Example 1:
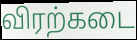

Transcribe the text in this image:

விரற்கடை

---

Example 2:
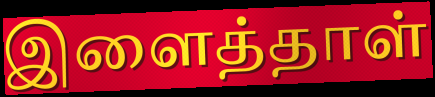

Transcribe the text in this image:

இளைத்தாள்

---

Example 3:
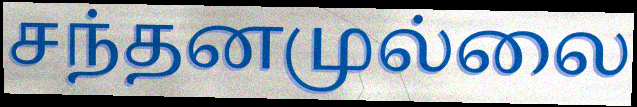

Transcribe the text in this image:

சந்தனமுல்லை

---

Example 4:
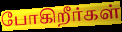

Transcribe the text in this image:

போகிறீர்கள்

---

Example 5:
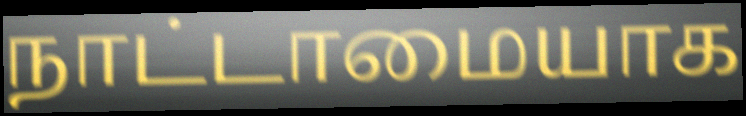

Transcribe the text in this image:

நாட்டாமையாக